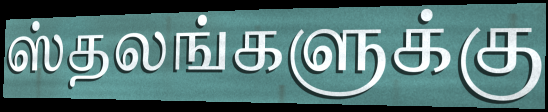
ஸ்தலங்களுக்கு